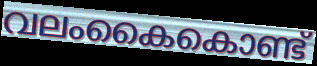
വലംകൈകൊണ്ട്